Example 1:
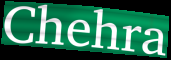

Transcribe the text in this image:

Chehra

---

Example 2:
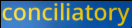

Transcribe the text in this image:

conciliatory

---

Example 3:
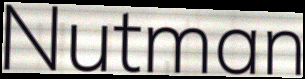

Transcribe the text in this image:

Nutman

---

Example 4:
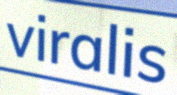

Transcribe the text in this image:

viralis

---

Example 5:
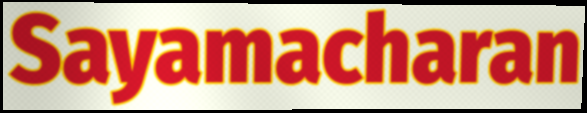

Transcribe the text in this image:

Sayamacharan